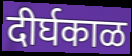
दीर्घकाळ